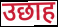
उछाह